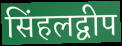
सिंहलद्वीप